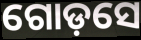
ଗୋଡ଼ସେ